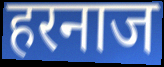
हरनाज